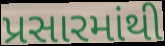
પ્રસારમાંથી